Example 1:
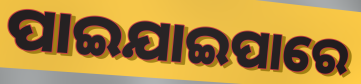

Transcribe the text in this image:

ପାଇଯାଇପାରେ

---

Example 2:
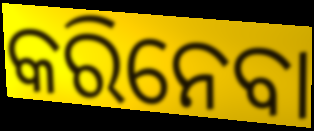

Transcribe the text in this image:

କରିନେବା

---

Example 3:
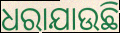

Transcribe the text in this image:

ଧରାଯାଉଛି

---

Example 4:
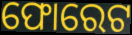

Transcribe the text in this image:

ଫୋରେଟ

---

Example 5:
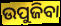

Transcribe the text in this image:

ଉପୁଜିବା